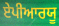
ਏਪੀਆਰਯੂ